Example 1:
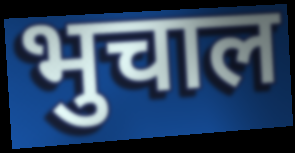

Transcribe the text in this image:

भुचाल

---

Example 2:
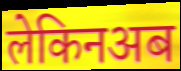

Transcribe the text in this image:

लेकिनअब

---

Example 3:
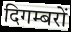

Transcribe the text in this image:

दिगम्बरों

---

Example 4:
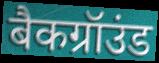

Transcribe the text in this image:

बैकग्रॉउंड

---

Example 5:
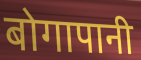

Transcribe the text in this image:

बोगापानी